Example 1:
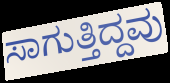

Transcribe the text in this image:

ಸಾಗುತ್ತಿದ್ದವು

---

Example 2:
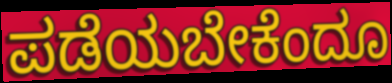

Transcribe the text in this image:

ಪಡೆಯಬೇಕೆಂದೂ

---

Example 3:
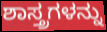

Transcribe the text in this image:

ಶಾಸ್ತ್ರಗಳನ್ನು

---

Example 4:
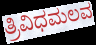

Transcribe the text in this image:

ತ್ರಿವಿಧಮಲವ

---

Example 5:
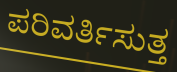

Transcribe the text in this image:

ಪರಿವರ್ತಿಸುತ್ತ